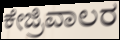
ಕೇಜ್ರಿವಾಲರ